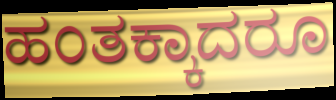
ಹಂತಕ್ಕಾದರೂ